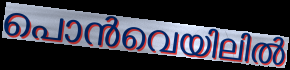
പൊൻവെയിലിൽ